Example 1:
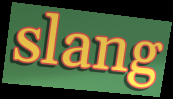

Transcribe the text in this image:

slang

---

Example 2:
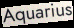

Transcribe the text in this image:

Aquarius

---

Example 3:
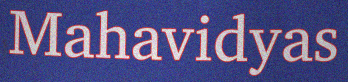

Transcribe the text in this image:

Mahavidyas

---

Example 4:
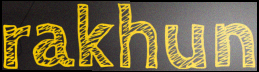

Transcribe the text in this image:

rakhun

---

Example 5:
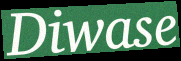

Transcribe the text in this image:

Diwase